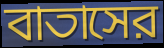
বাতাসের